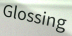
Glossing